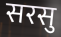
सरसु